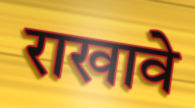
राखावे